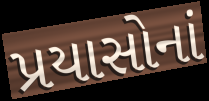
પ્રયાસોનાં